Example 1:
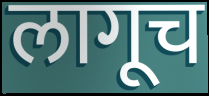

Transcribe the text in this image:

लागूच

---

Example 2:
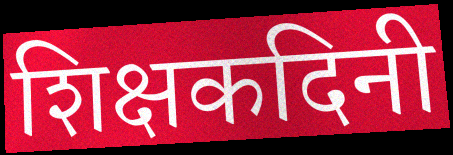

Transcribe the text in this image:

शिक्षकदिनी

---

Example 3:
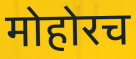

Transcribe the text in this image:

मोहोरच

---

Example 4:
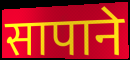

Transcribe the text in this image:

सापाने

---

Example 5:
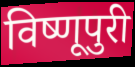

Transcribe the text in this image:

विष्णूपुरी